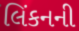
લિંકનની